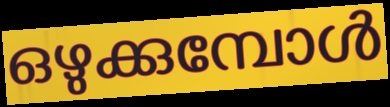
ഒഴുക്കുമ്പോൾ